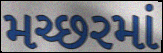
મચ્છરમાં